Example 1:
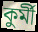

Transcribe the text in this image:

কুৰ্মী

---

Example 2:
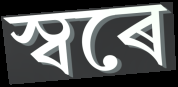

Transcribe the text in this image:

স্বৰে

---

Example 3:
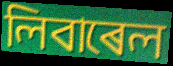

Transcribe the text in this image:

লিবাৰেল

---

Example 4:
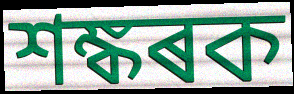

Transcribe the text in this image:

শঙ্কৰক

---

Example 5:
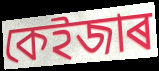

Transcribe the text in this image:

কেইজাৰ